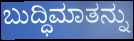
ಬುದ್ಧಿಮಾತನ್ನು